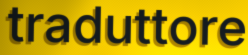
traduttore